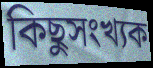
কিছুসংখ্যক